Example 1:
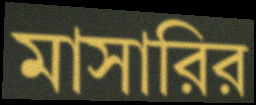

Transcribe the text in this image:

মাসারির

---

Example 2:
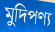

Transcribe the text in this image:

মুদিপণ্য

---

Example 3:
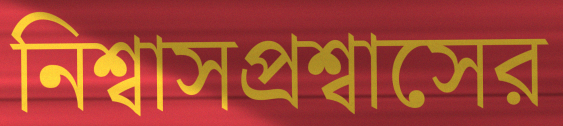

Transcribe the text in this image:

নিশ্বাসপ্রশ্বাসের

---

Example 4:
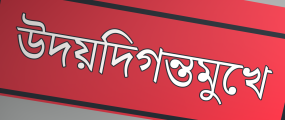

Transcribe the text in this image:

উদয়দিগন্তমুখে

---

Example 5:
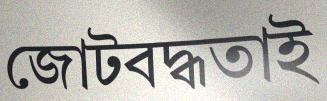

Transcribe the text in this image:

জোটবদ্ধতাই